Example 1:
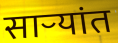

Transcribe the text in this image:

साऱ्यांत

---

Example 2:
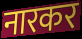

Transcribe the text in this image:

नारकर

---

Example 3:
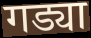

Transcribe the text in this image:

गड्या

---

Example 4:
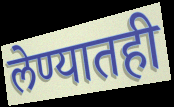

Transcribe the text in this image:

लेण्यातही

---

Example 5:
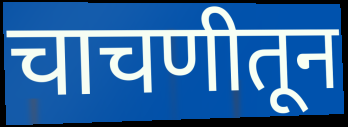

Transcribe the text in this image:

चाचणीतून